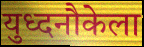
युध्दनौकेला